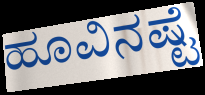
ಹೂವಿನಷ್ಟೆ